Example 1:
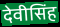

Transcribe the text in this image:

देवीसिंह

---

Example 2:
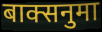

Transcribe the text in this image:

बाक्सनुमा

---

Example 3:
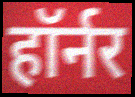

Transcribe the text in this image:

हॉर्नर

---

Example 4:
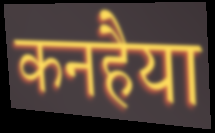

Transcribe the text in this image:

कनहैया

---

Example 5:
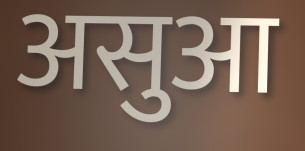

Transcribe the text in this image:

असुआ